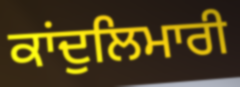
ਕਾਂਦੁਲਿਮਾਰੀ